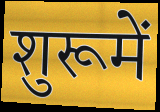
शुरूमें